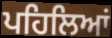
ਪਹਿਲਿਆਂ